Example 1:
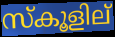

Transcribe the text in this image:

സ്കൂളില്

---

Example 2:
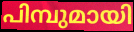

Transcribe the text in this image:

പിമ്പുമായി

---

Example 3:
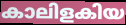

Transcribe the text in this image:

കാലിളകിയ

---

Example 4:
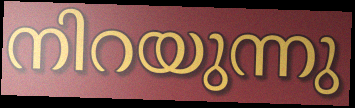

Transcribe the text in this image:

നിറയുന്നു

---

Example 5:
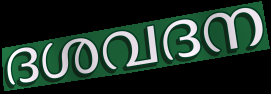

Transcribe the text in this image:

ദശവദന